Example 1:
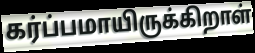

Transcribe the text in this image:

கர்ப்பமாயிருக்கிறாள்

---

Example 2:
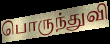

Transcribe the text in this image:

பொருந்துவி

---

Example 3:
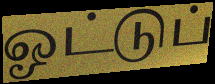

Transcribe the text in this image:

ஓட்டுப்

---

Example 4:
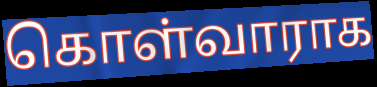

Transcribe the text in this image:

கொள்வாராக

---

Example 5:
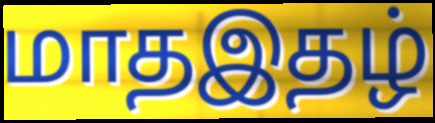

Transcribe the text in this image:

மாதஇதழ்